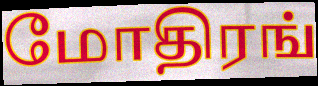
மோதிரங்